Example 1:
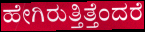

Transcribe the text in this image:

ಹೇಗಿರುತ್ತಿತ್ತೆಂದರೆ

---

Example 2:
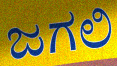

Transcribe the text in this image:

ಜಗಲಿ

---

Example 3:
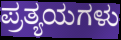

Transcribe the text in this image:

ಪ್ರತ್ಯಯಗಳು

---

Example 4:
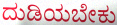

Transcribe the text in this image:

ದುಡಿಯಬೇಕು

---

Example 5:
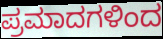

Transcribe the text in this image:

ಪ್ರಮಾದಗಳಿಂದ